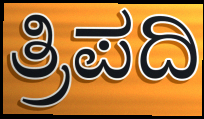
ತ್ರಿಪದಿ